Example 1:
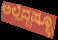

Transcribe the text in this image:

ಅಲ್ಲಿದ್ದಷ್ಟೂ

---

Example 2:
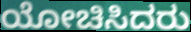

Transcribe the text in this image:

ಯೋಚಿಸಿದರು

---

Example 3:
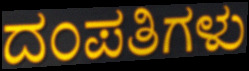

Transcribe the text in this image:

ದಂಪತಿಗಳು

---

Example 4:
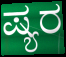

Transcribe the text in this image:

ಷ್ಯರ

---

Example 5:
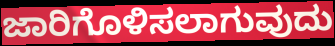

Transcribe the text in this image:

ಜಾರಿಗೊಳಿಸಲಾಗುವುದು